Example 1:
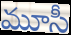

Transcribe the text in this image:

మూసీ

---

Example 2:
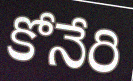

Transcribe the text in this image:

కోనేరి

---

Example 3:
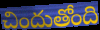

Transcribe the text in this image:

చిందుతోంది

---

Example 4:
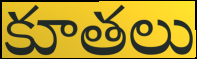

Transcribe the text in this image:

కూతలు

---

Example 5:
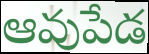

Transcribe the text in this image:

ఆవుపేడ